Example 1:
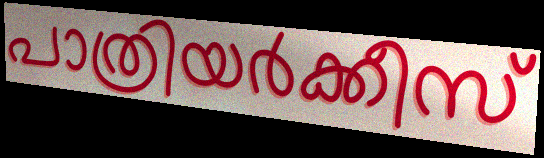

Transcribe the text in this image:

പാത്രിയർക്കീസ്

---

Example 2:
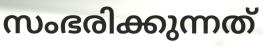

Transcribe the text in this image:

സംഭരിക്കുന്നത്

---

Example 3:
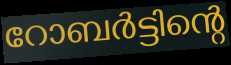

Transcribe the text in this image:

റോബർട്ടിന്റെ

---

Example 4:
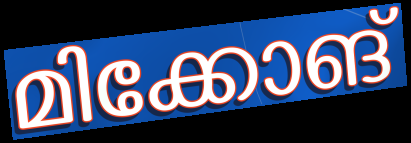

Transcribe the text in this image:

മിക്കോങ്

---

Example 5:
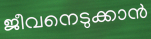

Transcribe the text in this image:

ജീവനെടുക്കാൻ